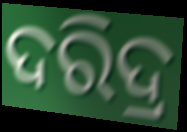
ଦରିଦ୍ର